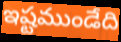
ఇష్టముండేది